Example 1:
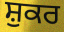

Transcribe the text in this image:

ਸ਼ੁਕਰ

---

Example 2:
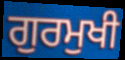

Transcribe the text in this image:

ਗੁਰਮੁਖੀ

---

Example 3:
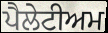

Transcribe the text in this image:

ਪੈਲੇਟੀਅਮ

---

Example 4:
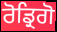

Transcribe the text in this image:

ਰੋਡ੍ਰਿਗੋ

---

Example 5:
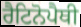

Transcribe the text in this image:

ਰੈਟਿਨੋਪੈਥੀ